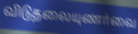
விடுதலையுணர்வை